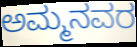
ಅಮ್ಮನವರ